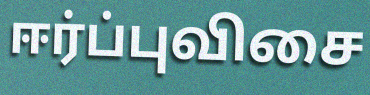
ஈர்ப்புவிசை